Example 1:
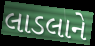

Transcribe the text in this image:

લાડલાને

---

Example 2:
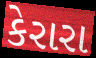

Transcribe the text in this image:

કેરારા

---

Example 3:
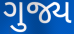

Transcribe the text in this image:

ગુજ્ય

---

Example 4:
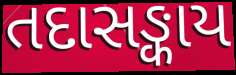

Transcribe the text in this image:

તદાસઙ્કાય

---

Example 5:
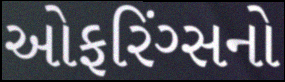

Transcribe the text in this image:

ઓફરિંગ્સનો